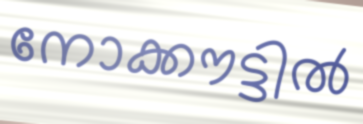
നോക്കൗട്ടിൽ